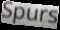
Spurs